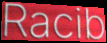
Racib